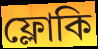
ফ্লোকি